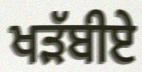
ਖੜੱਬੀਏ